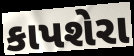
કાપશેરા